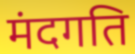
मंदगति